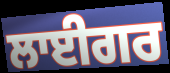
ਲਾਈਗਰ